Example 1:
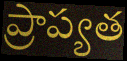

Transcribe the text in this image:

ప్రాప్యత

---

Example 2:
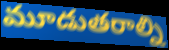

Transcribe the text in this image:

మూడుతరాల్ని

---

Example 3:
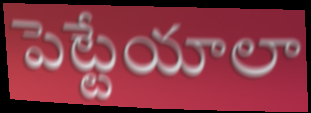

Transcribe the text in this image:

పెట్టేయాలా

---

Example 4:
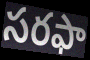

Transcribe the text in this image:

సరఫా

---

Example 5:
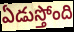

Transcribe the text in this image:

ఏడుస్తోంది